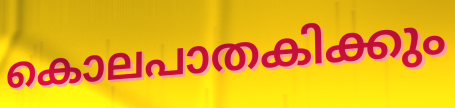
കൊലപാതകിക്കും